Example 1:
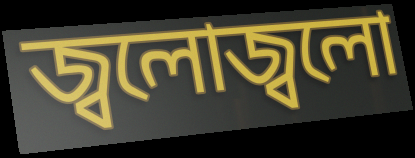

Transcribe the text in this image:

জ্বলোজ্বলো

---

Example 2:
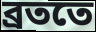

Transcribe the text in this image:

ব্রততে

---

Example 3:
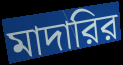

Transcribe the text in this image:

মাদারির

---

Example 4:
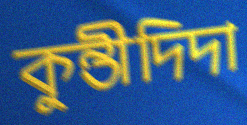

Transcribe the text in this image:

কুন্তীদিদা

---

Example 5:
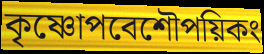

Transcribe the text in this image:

কৃষ্ণোপবেশৌপয়িকং